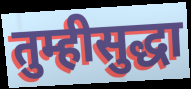
तुम्हीसुद्धा